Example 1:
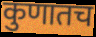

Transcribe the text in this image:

कुणातच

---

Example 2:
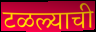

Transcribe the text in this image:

टळल्याची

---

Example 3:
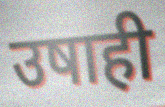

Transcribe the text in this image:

उषाही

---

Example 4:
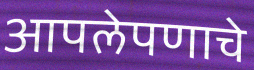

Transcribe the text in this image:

आपलेपणाचे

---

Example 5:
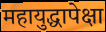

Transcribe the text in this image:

महायुद्धापेक्षा